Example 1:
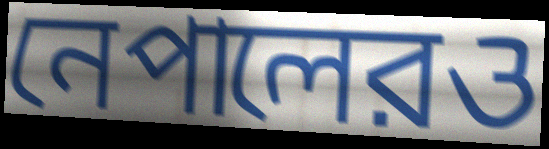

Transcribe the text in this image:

নেপালেরও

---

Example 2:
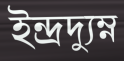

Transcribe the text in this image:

ইন্দ্রদ্যুম্ন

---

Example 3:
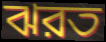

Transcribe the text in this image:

ঝরত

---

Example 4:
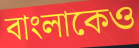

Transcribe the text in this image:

বাংলাকেও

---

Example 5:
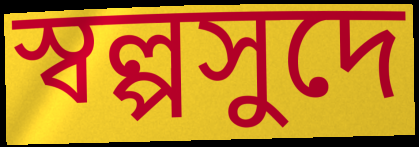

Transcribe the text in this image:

স্বল্পসুদে